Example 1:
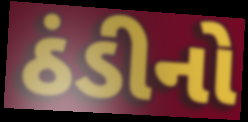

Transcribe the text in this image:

ઠંડીનો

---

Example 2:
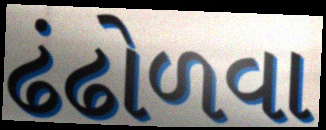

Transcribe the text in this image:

ઢંઢોળવા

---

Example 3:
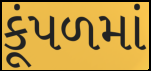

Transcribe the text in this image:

કૂંપળમાં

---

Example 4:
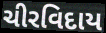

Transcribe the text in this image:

ચીરવિદાય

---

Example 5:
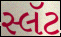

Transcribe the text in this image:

સ્લૅટ